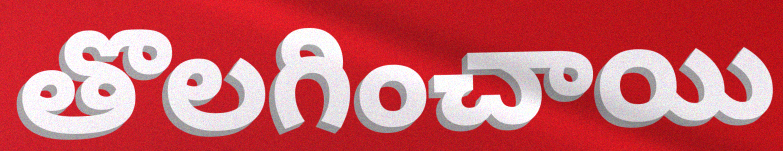
తొలగించాయి